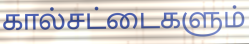
கால்சட்டைகளும்